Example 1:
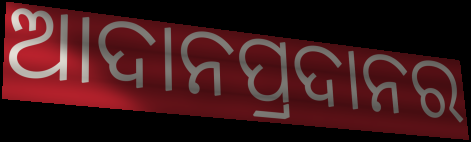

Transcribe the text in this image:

ଆଦାନପ୍ରଦାନର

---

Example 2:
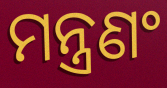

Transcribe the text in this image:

ମନ୍ତ୍ରଣଂ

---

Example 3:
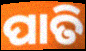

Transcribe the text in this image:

ପାତି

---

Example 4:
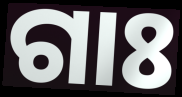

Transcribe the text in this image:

ଗାଃ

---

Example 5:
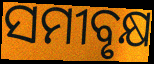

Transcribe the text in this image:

ସମୀବୃକ୍ଷ